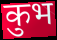
कुभ